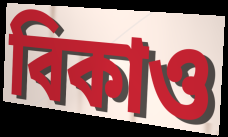
বিকাও